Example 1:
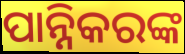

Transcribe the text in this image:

ପାନ୍ନିକରଙ୍କ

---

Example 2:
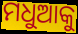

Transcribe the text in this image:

ମଧୁଆକୁ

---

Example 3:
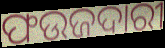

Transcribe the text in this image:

ଫଉଜଦାରୀ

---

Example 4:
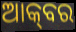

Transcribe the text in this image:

ଆକ୍‌ବର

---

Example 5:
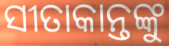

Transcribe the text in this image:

ସୀତାକାନ୍ତଙ୍କୁ